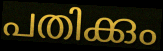
പതിക്കും